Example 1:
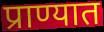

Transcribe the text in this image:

प्राण्यात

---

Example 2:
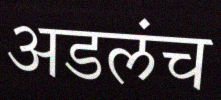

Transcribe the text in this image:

अडलंच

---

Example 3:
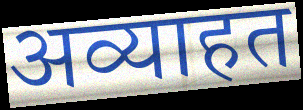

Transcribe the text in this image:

अव्याहत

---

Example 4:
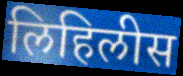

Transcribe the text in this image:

लिहिलीस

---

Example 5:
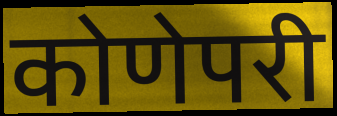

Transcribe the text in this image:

कोणेपरी